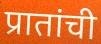
प्रातांची